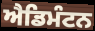
ਐਡਿਮੰਟਨ